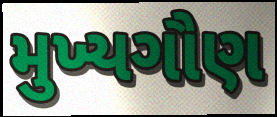
મુખ્યગૌણ